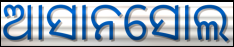
ଆସାନସୋଲ